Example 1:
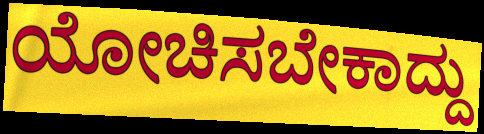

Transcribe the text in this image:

ಯೋಚಿಸಬೇಕಾದ್ದು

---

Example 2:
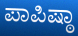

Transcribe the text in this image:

ಪಾಪಿಷ್ಠಾ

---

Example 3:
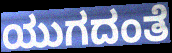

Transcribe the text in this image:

ಯುಗದಂತೆ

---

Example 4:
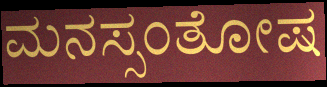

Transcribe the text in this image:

ಮನಸ್ಸಂತೋಷ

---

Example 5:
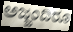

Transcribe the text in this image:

ಅಜ್ಜಂದಿರೂ